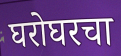
घरोघरचा